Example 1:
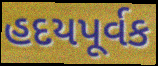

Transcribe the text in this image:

હદયપૂર્વક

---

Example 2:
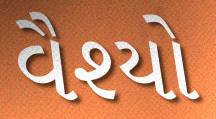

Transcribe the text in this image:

વૈશ્યો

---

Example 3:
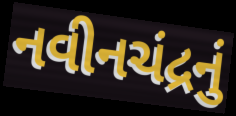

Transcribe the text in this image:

નવીનચંદ્રનું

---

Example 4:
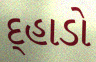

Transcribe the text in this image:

દ્હાડો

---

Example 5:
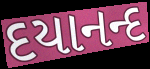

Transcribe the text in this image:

દયાનન્દ